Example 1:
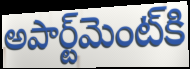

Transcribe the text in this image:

అపార్ట్‌మెంట్‌కి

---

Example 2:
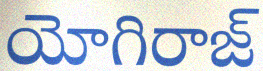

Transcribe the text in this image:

యోగిరాజ్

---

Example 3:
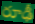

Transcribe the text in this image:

రూఢీ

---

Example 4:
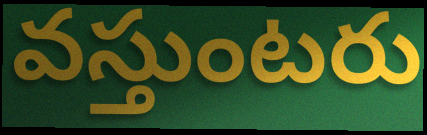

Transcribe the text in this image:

వస్తుంటరు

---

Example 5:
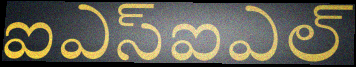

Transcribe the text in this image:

ఐఎస్ఐఎల్